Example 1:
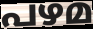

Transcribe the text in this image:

പഴമ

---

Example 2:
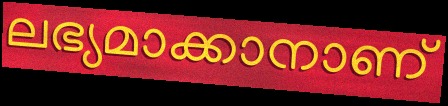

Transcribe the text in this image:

ലഭ്യമാക്കാനാണ്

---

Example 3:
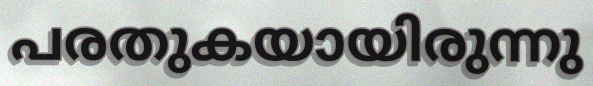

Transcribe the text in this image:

പരതുകയായിരുന്നു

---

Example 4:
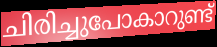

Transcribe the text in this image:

ചിരിച്ചുപോകാറുണ്ട്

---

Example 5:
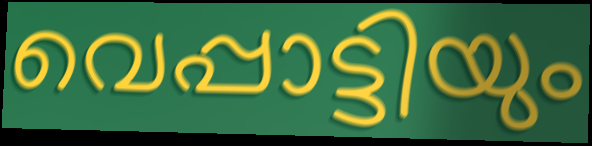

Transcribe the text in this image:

വെപ്പാട്ടിയും